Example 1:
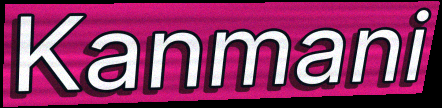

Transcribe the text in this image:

Kanmani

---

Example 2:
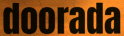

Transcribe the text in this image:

doorada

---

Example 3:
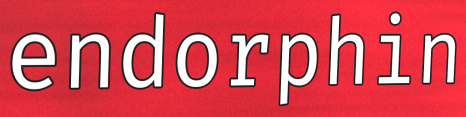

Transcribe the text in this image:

endorphin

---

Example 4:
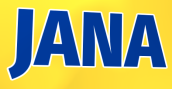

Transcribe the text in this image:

JANA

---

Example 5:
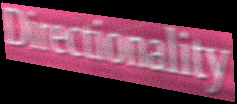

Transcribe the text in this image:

Directionality